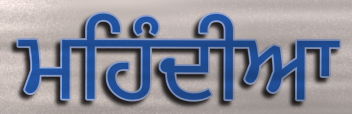
ਮਹਿੰਦੀਆ